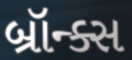
બ્રૉન્ક્સ